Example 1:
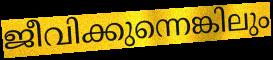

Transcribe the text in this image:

ജീവിക്കുന്നെങ്കിലും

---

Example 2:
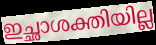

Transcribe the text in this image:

ഇച്ഛാശക്തിയില്ല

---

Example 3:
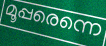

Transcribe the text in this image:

മൂപ്പരെന്നെ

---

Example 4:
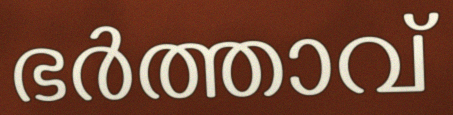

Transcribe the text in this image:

ഭർത്താവ്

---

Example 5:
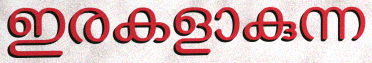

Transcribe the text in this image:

ഇരകളാകുന്ന